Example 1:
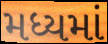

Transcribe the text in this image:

મધ્યમાં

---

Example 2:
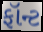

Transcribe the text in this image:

ફૉન્ટ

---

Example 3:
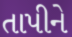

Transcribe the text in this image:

તાપીને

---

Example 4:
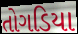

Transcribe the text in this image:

તોગડિયા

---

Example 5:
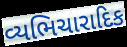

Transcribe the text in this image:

વ્યભિચારાદિક